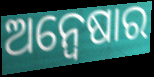
ଅନ୍ବେଷାର